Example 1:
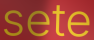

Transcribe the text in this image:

sete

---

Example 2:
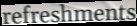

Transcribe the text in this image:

refreshments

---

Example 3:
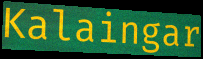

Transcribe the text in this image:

Kalaingar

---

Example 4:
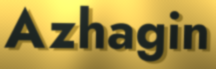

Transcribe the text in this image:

Azhagin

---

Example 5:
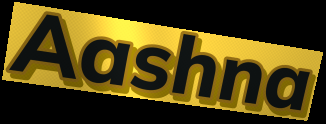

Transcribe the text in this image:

Aashna